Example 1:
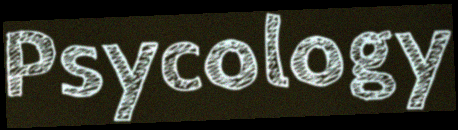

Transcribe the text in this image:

Psycology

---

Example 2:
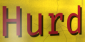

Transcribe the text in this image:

Hurd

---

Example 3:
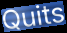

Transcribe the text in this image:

Quits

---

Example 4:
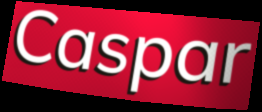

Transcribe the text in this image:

Caspar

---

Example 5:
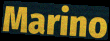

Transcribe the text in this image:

Marino